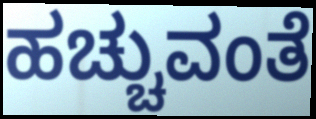
ಹಚ್ಚುವಂತೆ